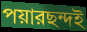
পয়ারছন্দই